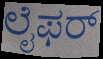
ಲೈಫರ್